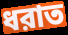
ধরাত